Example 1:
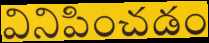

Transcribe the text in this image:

వినిపించడం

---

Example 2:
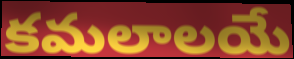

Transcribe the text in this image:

కమలాలయే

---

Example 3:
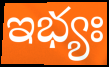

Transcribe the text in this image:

ఇభ్యః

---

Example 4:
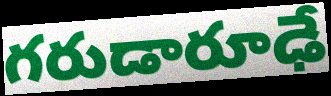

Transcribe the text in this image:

గరుడారూఢే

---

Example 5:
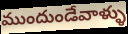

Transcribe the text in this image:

ముందుండేవాళ్ళు